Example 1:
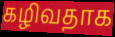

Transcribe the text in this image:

கழிவதாக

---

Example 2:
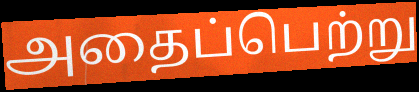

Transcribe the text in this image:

அதைப்பெற்று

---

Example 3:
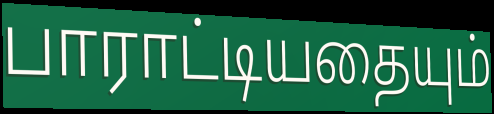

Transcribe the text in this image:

பாராட்டியதையும்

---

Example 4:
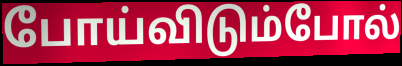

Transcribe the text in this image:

போய்விடும்போல்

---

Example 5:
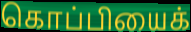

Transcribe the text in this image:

கொப்பியைக்